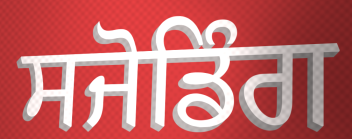
ਸਜੋਡਿੰਗ